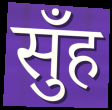
सुँह